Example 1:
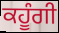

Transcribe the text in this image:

ਕਹੂੰਗੀ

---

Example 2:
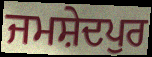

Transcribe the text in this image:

ਜਮਸ਼ੇਦਪੁਰ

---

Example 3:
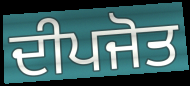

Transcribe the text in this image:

ਦੀਪਜੋਤ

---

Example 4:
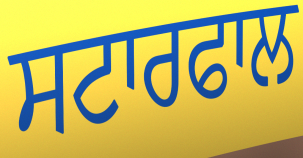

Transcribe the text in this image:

ਸਟਾਰਫਾਲ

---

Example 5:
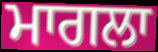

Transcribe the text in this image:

ਮਾਗਲਾ